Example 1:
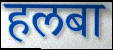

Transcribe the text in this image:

हलबा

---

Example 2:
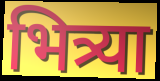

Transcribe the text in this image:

भित्र्या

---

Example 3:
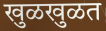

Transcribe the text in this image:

खुळखुळत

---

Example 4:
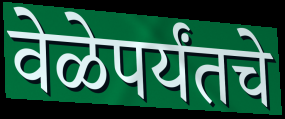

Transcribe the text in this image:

वेळेपर्यंतचे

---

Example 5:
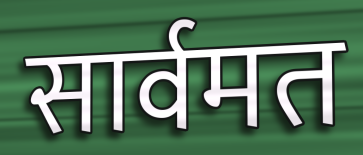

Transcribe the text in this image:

सार्वमत